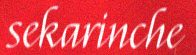
sekarinche